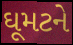
ઘૂમટને